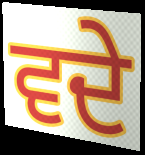
ਵਦੇ